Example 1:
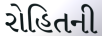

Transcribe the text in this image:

રોહિતની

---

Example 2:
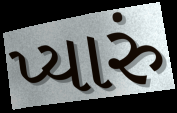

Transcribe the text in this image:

પ્યારું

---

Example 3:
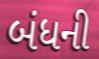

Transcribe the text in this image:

બંધની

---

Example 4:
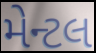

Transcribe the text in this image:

મેન્ટલ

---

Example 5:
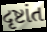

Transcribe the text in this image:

દૃષ્ટાંત